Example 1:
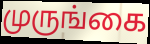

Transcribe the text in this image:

முருங்கை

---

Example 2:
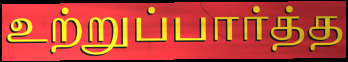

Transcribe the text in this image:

உற்றுப்பார்த்த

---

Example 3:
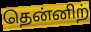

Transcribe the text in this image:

தென்னிற்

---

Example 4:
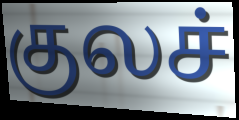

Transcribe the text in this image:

குலச்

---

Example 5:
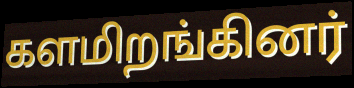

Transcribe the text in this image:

களமிறங்கினர்